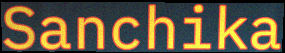
Sanchika